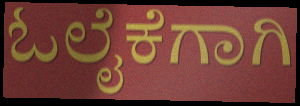
ಓಲೈಕೆಗಾಗಿ